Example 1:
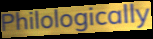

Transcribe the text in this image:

Philologically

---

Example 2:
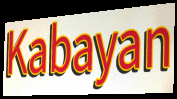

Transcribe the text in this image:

Kabayan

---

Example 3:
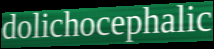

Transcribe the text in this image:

dolichocephalic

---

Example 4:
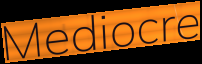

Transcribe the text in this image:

Mediocre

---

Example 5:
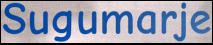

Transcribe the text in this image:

Sugumarje